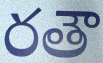
రతౌ